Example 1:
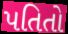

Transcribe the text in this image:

પતિતો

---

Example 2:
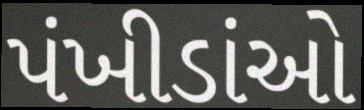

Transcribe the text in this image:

પંખીડાંઓ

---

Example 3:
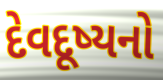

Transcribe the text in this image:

દેવદૂષ્યનો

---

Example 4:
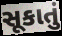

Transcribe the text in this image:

સૂકાતું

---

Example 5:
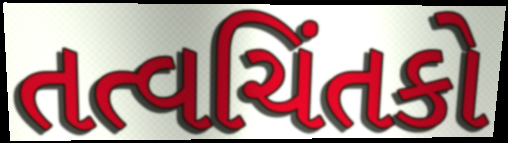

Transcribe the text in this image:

તત્વચિંતકો